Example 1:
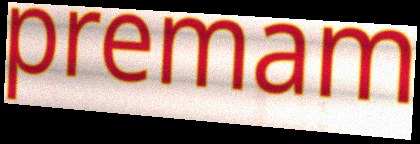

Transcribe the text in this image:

premam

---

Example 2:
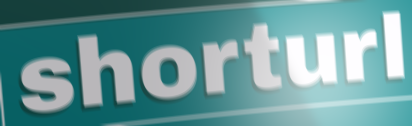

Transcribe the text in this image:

shorturl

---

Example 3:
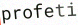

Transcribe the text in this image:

profeti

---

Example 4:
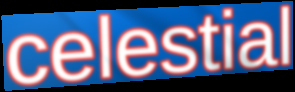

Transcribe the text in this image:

celestial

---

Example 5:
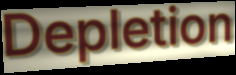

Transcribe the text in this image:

Depletion